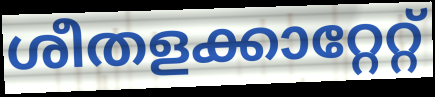
ശീതളക്കാറ്റേറ്റ്